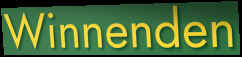
Winnenden